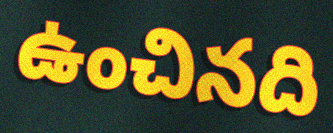
ఉంచినది